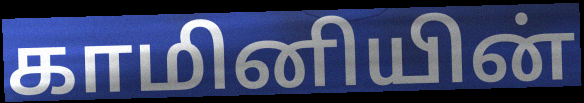
காமினியின்